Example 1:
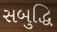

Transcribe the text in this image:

સબુદ્ધિ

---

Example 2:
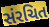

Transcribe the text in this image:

સંરચિત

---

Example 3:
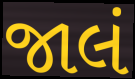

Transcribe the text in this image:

જાલં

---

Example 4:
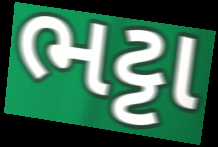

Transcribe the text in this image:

ભટ્ટા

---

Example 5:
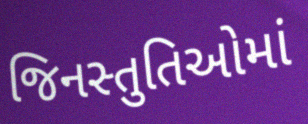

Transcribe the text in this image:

જિનસ્તુતિઓમાં